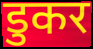
डुकर